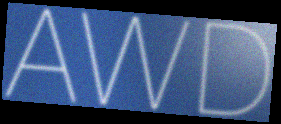
AWD